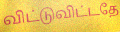
விட்டுவிட்டதே